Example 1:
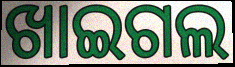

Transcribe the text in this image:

ଖାଇଗଲ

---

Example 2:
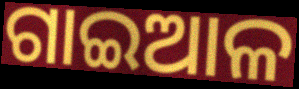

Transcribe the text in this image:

ଗାଇଆଳ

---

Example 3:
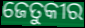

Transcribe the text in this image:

ଜେତୁକୀର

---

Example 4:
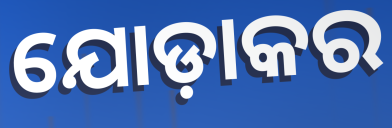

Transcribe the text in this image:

ଯୋଡ଼ାକର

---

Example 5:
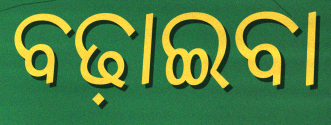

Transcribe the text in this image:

ବଢ଼ାଇବା